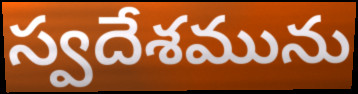
స్వదేశమును